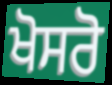
ਖੋਸਰੋ